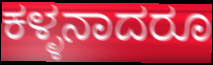
ಕಳ್ಳನಾದರೂ